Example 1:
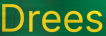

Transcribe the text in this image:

Drees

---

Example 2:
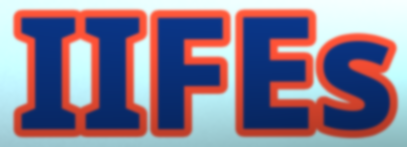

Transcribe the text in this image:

IIFEs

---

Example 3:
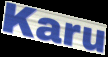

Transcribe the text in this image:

Karu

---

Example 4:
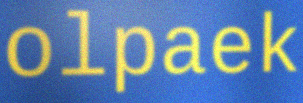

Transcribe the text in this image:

olpaek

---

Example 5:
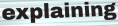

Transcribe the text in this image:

explaining